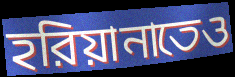
হরিয়ানাতেও